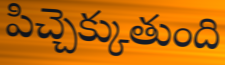
పిచ్చెక్కుతుంది